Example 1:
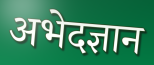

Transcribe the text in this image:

अभेदज्ञान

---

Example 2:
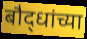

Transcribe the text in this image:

बौद्धांच्या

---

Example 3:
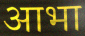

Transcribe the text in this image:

आभा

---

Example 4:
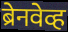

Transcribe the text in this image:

ब्रेनवेव्ह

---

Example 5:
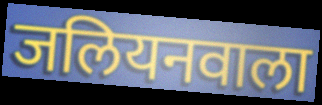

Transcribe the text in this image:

जलियनवाला